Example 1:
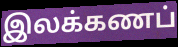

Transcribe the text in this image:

இலக்கணப்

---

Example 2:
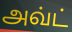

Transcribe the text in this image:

அவ்ட்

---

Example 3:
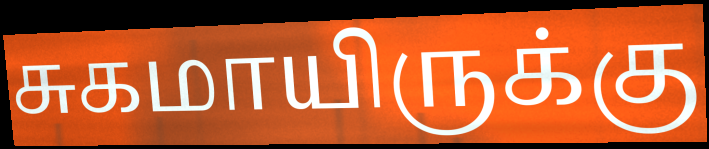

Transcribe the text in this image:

சுகமாயிருக்கு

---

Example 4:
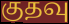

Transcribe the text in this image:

குதவு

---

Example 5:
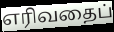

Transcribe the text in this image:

எரிவதைப்